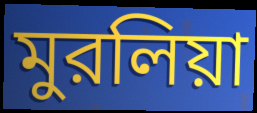
মুরলিয়া